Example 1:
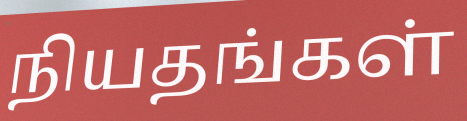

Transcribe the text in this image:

நியதங்கள்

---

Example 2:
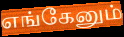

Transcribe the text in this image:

எங்கேனும்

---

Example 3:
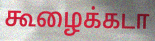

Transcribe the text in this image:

கூழைக்கடா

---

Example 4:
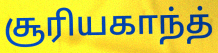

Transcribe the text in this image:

சூரியகாந்த்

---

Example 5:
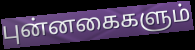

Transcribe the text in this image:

புன்னகைகளும்